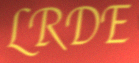
LRDE